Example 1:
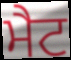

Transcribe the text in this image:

ਮੈਟ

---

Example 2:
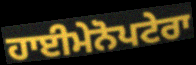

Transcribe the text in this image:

ਹਾਈਮੇਨੋਪਟੇਰਾ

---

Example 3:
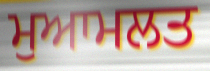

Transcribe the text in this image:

ਮੁਆਮਲਤ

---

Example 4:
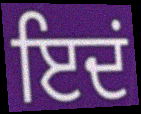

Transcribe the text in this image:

ਇਦਂ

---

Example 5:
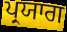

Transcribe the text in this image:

ਪ੍ਰਯਾਗ